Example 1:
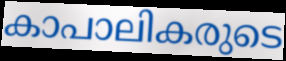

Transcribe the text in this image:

കാപാലികരുടെ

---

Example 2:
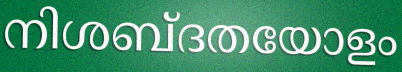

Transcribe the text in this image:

നിശബ്ദതയോളം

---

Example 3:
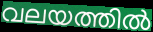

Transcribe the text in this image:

വലയത്തിൽ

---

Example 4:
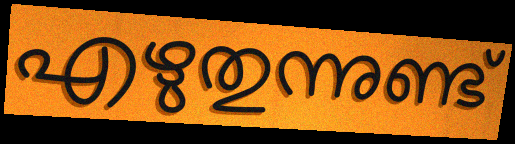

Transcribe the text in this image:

എഴുതുന്നുണ്ട്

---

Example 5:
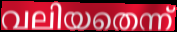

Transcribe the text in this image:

വലിയതെന്ന്